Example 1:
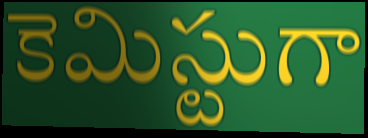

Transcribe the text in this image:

కెమిస్టుగా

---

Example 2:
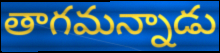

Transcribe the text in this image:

తాగమన్నాడు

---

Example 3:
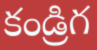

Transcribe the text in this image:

కండ్రిగ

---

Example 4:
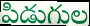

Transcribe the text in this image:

పిడుగుల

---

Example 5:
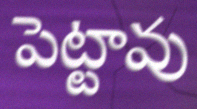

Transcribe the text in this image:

పెట్టావు